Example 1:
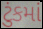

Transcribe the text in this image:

ટુંકમાં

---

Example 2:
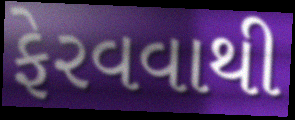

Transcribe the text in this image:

ફેરવવાથી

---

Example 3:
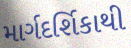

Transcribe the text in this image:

માર્ગદર્શિકાથી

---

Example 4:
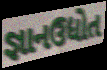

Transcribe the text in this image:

જ્ઞાનઉદ્યોત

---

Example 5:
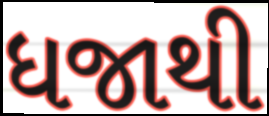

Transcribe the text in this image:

ધજાથી